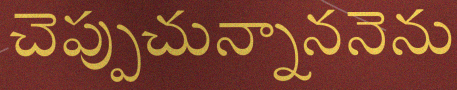
చెప్పుచున్నాననెను